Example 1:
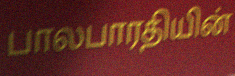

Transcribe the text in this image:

பாலபாரதியின்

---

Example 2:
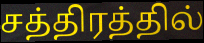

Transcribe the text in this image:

சத்திரத்தில்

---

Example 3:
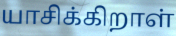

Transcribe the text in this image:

யாசிக்கிறாள்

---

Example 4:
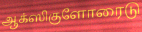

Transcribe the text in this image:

ஆக்ஸிகுளோரைடு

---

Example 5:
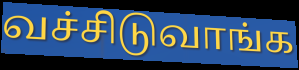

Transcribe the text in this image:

வச்சிடுவாங்க